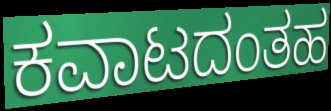
ಕವಾಟದಂತಹ